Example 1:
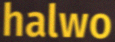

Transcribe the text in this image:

halwo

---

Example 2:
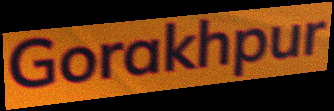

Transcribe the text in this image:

Gorakhpur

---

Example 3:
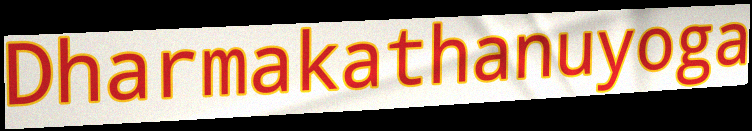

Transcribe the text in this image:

Dharmakathanuyoga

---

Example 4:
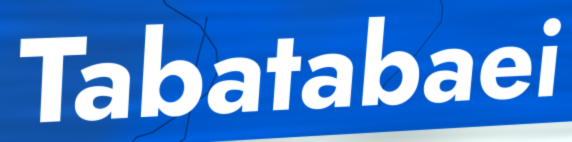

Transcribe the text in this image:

Tabatabaei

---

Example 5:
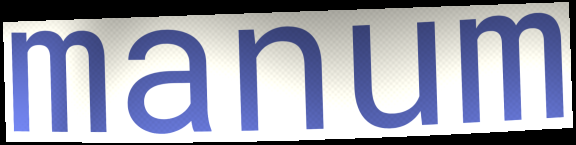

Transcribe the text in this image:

manum